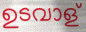
ഉടവാള്